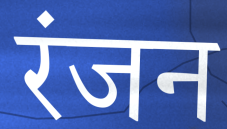
रंजन